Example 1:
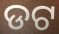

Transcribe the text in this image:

ଡଟ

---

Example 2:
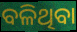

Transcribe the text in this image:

ବଳିଥିବା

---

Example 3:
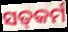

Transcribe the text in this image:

ସତ୍‍କର୍ମ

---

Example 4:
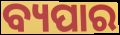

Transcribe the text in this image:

ବ୍ୟପାର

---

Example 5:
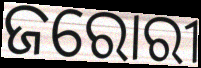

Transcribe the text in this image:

ଜରୋରୀ